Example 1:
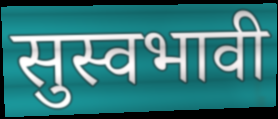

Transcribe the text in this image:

सुस्वभावी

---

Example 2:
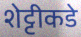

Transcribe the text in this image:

शेट्टीकडे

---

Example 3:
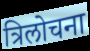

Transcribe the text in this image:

त्रिलोचना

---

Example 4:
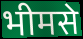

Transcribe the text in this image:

भीमसे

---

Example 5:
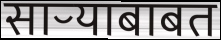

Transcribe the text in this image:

साऱ्याबाबत